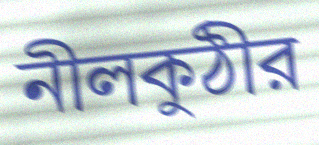
নীলকুঠীর